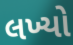
લખ્યો